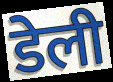
डेली